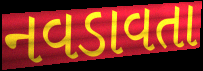
નવડાવતા